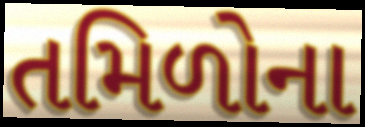
તમિળોના